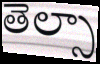
తెల్సా